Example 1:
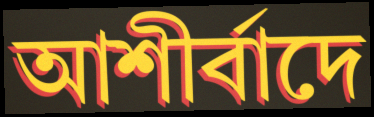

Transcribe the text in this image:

আশীর্বাদে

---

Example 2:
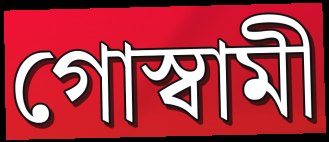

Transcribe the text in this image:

গোস্বামী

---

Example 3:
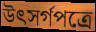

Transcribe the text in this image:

উৎসর্গপত্রে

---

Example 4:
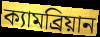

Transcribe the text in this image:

ক্যামব্রিয়ান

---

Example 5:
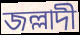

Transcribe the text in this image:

জল্লাদী